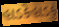
હાડકેહાડકું